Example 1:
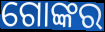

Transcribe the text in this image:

ଗୋଙ୍କର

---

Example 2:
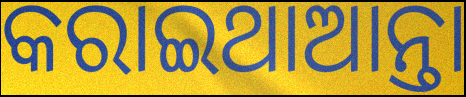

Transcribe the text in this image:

କରାଇଥାଆନ୍ତା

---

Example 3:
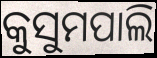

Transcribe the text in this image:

କୁସୁମପାଲି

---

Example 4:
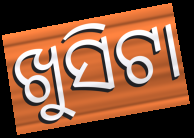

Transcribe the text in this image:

ଖୁସିଟା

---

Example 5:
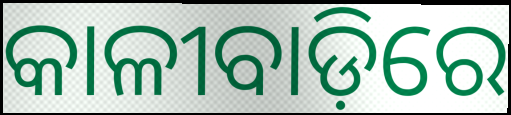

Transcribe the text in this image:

କାଳୀବାଡ଼ିରେ